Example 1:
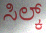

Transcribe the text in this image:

ಸಿಲ್ಕ್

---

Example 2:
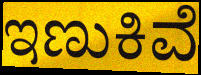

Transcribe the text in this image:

ಇಣುಕಿವೆ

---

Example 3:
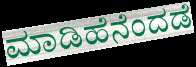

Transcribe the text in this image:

ಮಾಡಿಹೆನೆಂದಡೆ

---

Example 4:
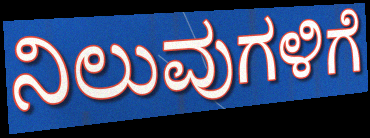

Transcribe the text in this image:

ನಿಲುವುಗಳಿಗೆ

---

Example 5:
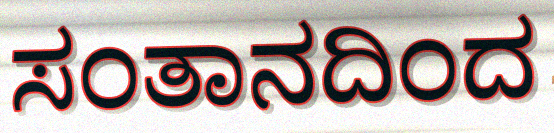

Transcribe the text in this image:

ಸಂತಾನದಿಂದ